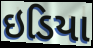
ઇડિયા